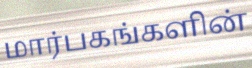
மார்பகங்களின்